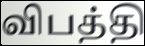
விபத்தி